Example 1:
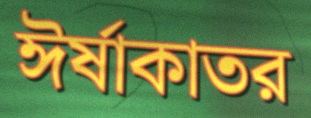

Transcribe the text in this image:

ঈর্ষাকাতর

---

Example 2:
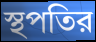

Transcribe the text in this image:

স্থপতির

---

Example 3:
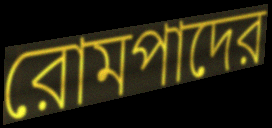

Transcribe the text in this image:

রোমপাদের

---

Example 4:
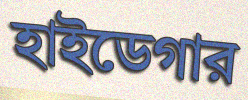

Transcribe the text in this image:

হাইডেগার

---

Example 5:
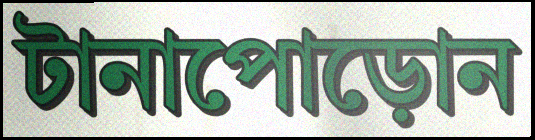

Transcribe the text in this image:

টানাপোড়োন